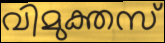
വിമുക്തസ്